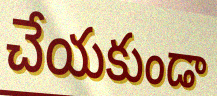
చేయకుండా